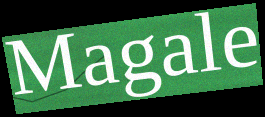
Magale